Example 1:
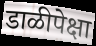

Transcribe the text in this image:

डाळीपेक्षा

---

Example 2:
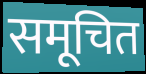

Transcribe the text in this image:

समूचित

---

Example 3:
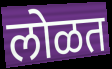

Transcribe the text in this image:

लोळत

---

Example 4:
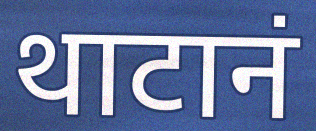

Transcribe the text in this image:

थाटानं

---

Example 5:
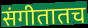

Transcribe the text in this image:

संगीतातच